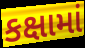
કક્ષામાં